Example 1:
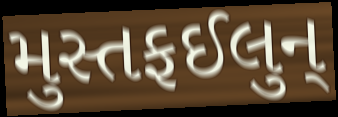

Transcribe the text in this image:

મુસ્તફઈલુન્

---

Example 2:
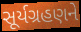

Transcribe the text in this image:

સૂર્યગ્રહણને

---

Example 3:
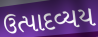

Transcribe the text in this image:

ઉત્પાદવ્યય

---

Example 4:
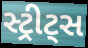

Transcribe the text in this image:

સ્ટ્રીટ્સ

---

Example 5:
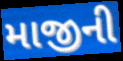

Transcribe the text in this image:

માજીની